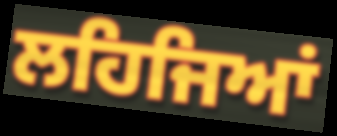
ਲਹਿਜਿਆਂ